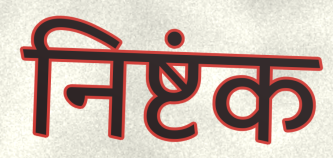
निष्टंक